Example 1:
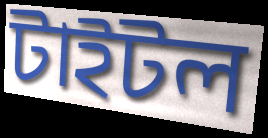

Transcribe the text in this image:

টাইটল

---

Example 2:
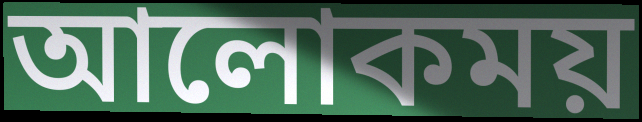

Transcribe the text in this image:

আলোকময়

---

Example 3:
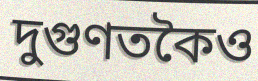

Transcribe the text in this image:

দুগুণতকৈও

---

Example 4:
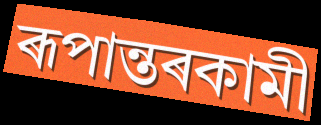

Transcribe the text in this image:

ৰূপান্তৰকামী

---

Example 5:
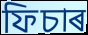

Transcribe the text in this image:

ফিচাৰ